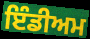
ਇੰਡੀਅਮ